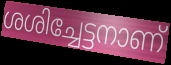
ശശിച്ചേട്ടനാണ്